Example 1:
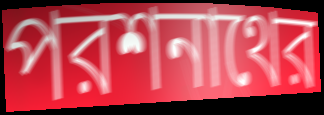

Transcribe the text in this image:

পরশনাথের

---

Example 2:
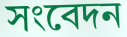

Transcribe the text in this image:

সংবেদন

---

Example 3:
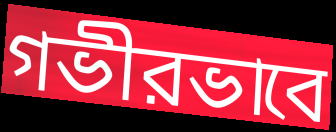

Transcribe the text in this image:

গভীরভাবে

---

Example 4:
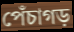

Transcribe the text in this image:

পেঁচাগড়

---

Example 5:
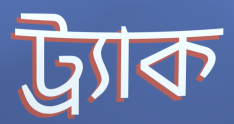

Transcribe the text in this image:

ট্র্যাক